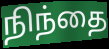
நிந்தை